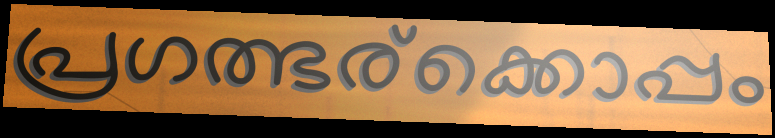
പ്രഗത്ഭര്ക്കൊപ്പം